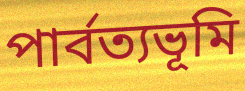
পার্বত্যভূমি